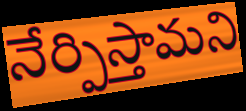
నేర్పిస్తామని